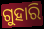
ଗୁହାରି